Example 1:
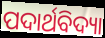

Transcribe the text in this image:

ପଦାର୍ଥବିଦ୍ୟା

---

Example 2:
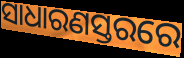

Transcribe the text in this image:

ସାଧାରଣସ୍ତରରେ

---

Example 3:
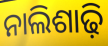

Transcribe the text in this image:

ନାଲିଶାଢ଼ି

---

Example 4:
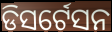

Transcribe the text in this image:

ଡିସର୍ଟେସନ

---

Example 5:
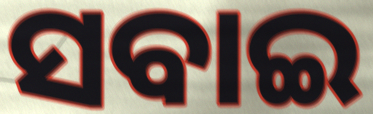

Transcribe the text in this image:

ସବାଇ